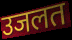
उजलत